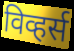
विव्हर्स